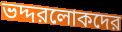
ভদ্দরলোকদের